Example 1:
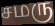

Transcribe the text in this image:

சமரு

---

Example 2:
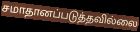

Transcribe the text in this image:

சமாதானப்படுத்தவில்லை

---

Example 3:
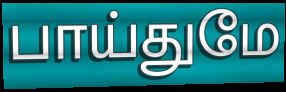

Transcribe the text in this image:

பாய்துமே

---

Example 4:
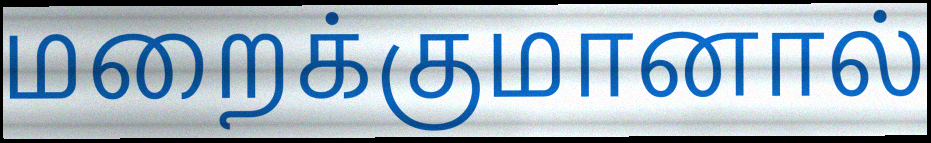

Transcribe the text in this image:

மறைக்குமானால்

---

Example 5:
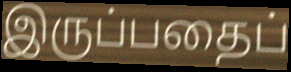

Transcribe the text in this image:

இருப்பதைப்